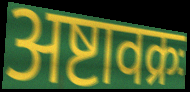
अष्टावक्रः